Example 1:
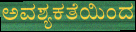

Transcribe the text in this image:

ಅವಶ್ಯಕತೆಯಿಂದ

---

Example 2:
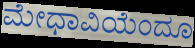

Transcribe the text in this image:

ಮೇಧಾವಿಯೆಂದೂ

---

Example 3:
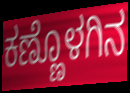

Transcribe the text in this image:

ಕಣ್ಣೊಳಗಿನ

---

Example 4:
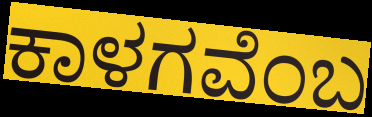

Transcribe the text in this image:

ಕಾಳಗವೆಂಬ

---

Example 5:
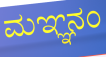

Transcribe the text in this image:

ಮಞ್ಞನಂ